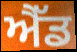
ਐੱਡ